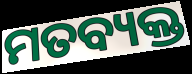
ମତବ୍ୟକ୍ତ